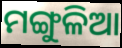
ମଙ୍ଗୁଳିଆ